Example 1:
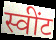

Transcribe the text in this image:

स्वींट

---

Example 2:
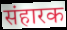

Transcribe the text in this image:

संहारक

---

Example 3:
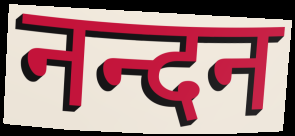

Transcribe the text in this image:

नन्दन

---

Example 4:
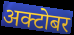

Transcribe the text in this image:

अक्टोबर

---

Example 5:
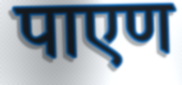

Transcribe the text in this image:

पाएण